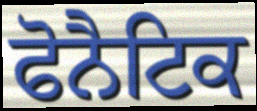
ਫੋਨੈਟਿਕ